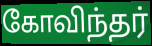
கோவிந்தர்